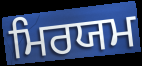
ਮਿਰਯਮ